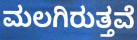
ಮಲಗಿರುತ್ತವೆ